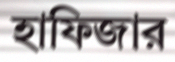
হাফিজার